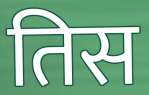
तिस